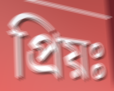
প্রিয়ঃ